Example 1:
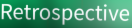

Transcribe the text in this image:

Retrospective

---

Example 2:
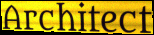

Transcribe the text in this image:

Architect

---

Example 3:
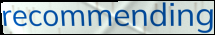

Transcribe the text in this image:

recommending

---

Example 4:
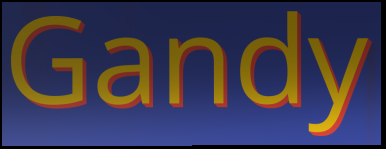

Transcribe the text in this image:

Gandy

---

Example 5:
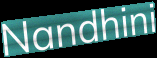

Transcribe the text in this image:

Nandhini